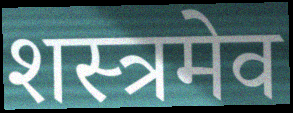
शस्त्रमेव